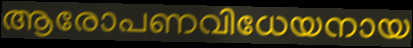
ആരോപണവിധേയനായ